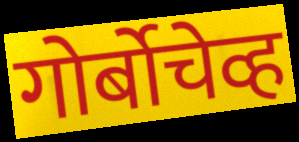
गोर्बोचेव्ह